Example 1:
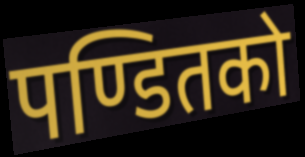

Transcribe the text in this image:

पण्डितको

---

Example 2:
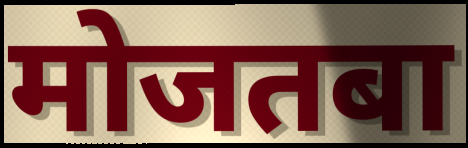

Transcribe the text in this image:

मोजतबा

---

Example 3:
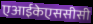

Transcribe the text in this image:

एआईकेएससीसी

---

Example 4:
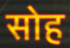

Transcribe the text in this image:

सोह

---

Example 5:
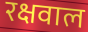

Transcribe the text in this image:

रक्षवाल